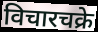
विचारचक्रे